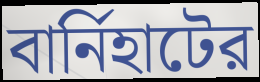
বার্নিহাটের